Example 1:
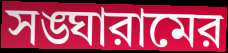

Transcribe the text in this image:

সঙ্ঘারামের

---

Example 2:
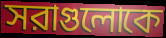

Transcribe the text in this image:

সরাগুলোকে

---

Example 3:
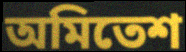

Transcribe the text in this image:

অমিতেশ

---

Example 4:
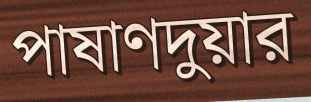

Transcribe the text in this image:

পাষাণদুয়ার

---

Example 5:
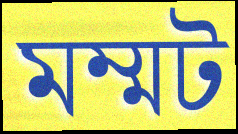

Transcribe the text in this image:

মম্মট